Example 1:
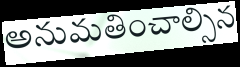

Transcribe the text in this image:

అనుమతించాల్సిన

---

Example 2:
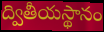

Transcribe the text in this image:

ద్వితీయస్థానం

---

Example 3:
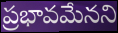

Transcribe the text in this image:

ప్రభావమేనని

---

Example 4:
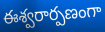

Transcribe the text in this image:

ఈశ్వరార్పణంగా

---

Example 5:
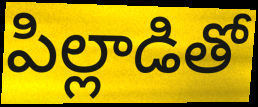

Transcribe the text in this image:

పిల్లాడితో